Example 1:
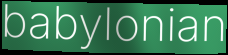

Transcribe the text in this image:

babylonian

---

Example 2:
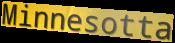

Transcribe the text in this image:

Minnesotta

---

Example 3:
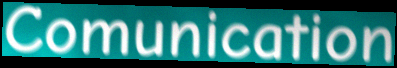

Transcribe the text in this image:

Comunication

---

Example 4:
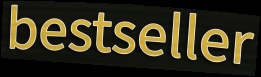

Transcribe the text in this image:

bestseller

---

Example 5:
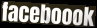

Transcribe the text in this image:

faceboook